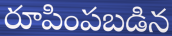
రూపింపబడిన